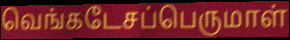
வெங்கடேசப்பெருமாள்